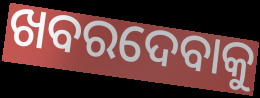
ଖବରଦେବାକୁ